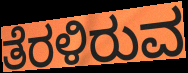
ತೆರಳಿರುವ